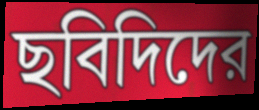
ছবিদিদের